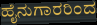
ಹೈನುಗಾರರಿಂದ